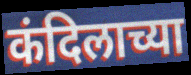
कंदिलाच्या